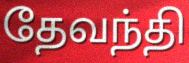
தேவந்தி